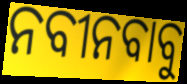
ନବୀନବାବୁ